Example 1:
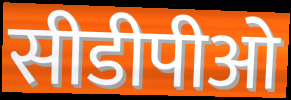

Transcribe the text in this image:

सीडीपीओ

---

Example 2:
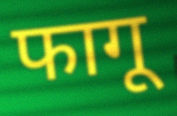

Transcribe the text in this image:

फागू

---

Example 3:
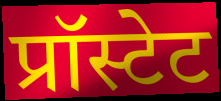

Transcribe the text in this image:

प्रॉस्टेट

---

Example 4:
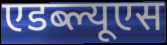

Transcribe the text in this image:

एडब्ल्यूएस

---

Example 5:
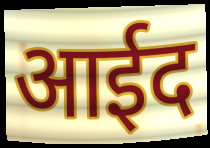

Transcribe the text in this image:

आईद